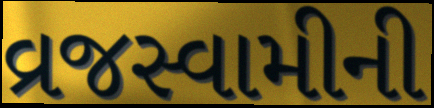
વ્રજસ્વામીની